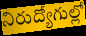
నిరుద్యోగుల్లో